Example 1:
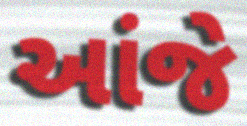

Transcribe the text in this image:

આંજે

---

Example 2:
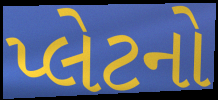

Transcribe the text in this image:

પ્લેટનો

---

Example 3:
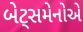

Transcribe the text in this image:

બેટ્સમેનોએ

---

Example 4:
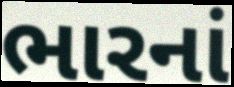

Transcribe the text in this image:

ભારનાં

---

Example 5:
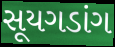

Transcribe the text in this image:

સૂયગડાંગ